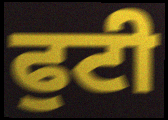
ਫੁਟੀ